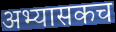
अभ्यासकच